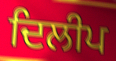
ਦਿਲੀਪ